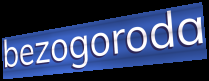
bezogoroda